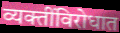
व्यक्तींविरोधात